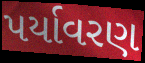
પર્યાવરણ